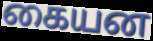
கையன